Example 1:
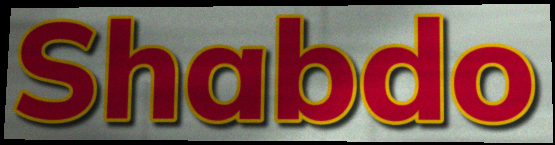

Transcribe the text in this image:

Shabdo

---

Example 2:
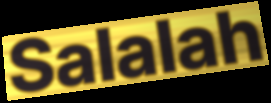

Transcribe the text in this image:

Salalah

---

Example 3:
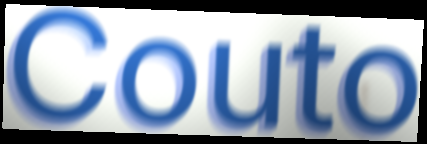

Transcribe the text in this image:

Couto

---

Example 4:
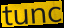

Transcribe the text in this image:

tunc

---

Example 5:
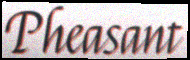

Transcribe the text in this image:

Pheasant